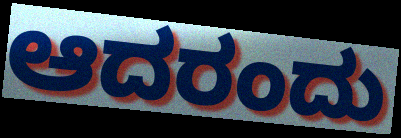
ಆದರಂದು